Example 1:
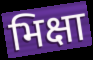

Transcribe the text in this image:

भिक्षा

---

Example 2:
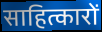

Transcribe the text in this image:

साहित्कारों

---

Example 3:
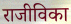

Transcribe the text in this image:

राजीविका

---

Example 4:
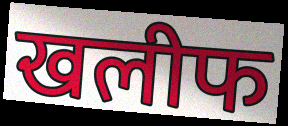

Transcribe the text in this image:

खलीफ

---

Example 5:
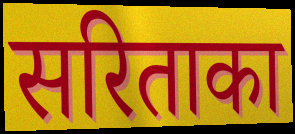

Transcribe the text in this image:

सरिताका